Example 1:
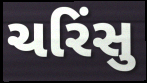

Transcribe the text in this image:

ચરિંસુ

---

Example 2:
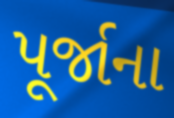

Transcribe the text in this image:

પૂર્જાના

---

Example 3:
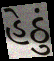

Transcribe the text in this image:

હેઠું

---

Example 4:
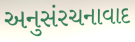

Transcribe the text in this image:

અનુસંરચનાવાદ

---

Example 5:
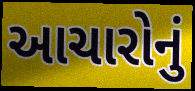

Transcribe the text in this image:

આચારોનું